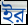
ইর